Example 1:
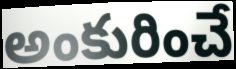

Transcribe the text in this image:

అంకురించే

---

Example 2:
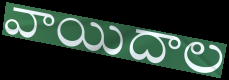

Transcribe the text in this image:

వాయిదాల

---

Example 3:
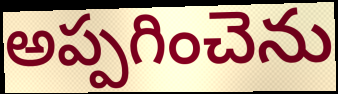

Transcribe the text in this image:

అప్పగించెను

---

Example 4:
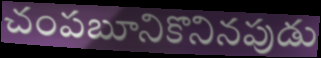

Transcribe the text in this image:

చంపబూనికొనినపుడు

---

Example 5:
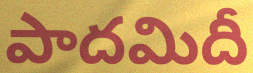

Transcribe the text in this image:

పాదమిదీ